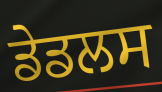
ਡੇਡਲਸ